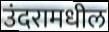
उंदरामधील